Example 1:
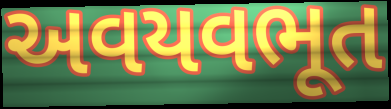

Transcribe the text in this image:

અવયવભૂત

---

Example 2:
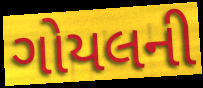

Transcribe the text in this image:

ગોયલની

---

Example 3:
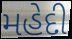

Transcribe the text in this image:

મહેદી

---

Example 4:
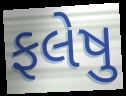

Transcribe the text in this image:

ફલેષુ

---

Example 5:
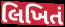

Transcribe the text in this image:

લિખિતં